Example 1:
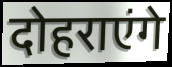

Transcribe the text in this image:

दोहराएंगे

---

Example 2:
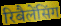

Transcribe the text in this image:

रिबैलेंसिंग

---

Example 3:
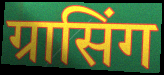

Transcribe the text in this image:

ग्रासिंग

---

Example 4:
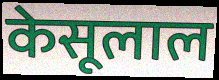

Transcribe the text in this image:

केसूलाल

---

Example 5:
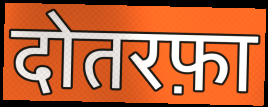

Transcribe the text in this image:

दोतरफ़ा